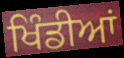
ਖਿੰਡੀਆਂ